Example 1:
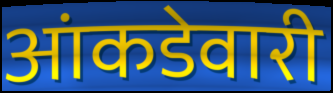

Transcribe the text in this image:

आंकडेवारी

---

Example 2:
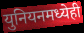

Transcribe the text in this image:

युनियनमध्येही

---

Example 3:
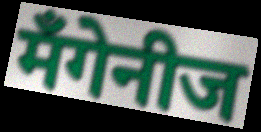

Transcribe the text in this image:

मँगेनीज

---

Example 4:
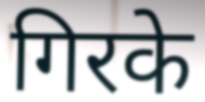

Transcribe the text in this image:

गिरके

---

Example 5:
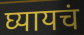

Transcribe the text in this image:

घ्यायचं